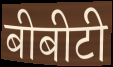
बीबीटी